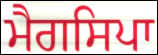
ਮੈਗਸਿਪਾ